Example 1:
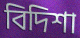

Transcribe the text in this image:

বিদিশা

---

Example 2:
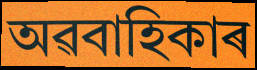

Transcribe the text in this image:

অৱবাহিকাৰ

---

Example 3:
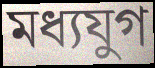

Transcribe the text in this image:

মধ্যযুগ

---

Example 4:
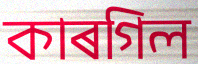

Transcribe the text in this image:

কাৰগিল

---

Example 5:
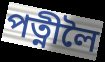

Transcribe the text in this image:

পত্নীলৈ